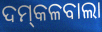
ଦମ୍‍କଳବାଲା